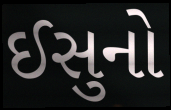
ઈસુનો